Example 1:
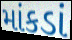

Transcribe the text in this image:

માંકડાં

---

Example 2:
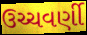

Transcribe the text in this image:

ઉચ્ચવર્ણી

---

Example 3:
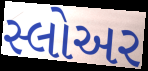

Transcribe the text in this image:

સ્લોઅર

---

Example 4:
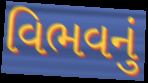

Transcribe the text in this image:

વિભવનું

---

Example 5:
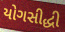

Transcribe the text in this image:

યોગસીદ્ધી